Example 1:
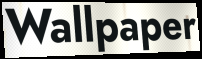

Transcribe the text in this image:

Wallpaper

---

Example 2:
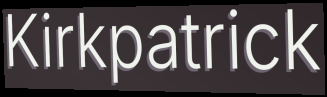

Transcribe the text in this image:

Kirkpatrick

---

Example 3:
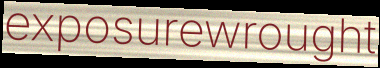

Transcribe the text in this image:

exposurewrought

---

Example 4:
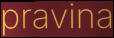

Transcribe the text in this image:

pravina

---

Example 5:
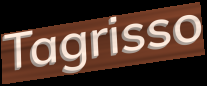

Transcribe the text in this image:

Tagrisso